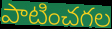
పాటించగల